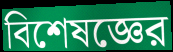
বিশেষজ্ঞের